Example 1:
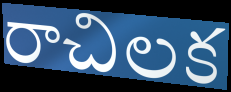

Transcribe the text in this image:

రాచిలక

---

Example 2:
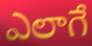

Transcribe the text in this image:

ఎలాగే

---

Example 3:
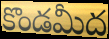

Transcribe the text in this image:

కొండమీద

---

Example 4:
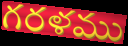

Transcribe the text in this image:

గరళము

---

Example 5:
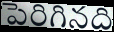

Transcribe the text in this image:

పెరిగినది